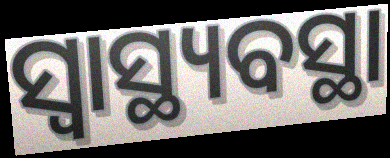
ସ୍ଵାସ୍ଥ୍ୟବସ୍ଥା